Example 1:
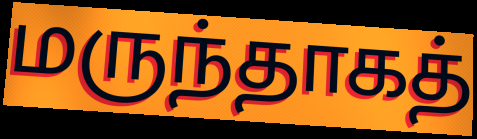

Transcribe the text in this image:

மருந்தாகத்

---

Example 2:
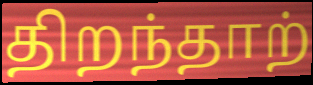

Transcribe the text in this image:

திறந்தாற்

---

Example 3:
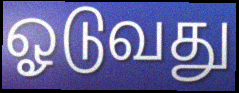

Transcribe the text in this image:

ஓடுவது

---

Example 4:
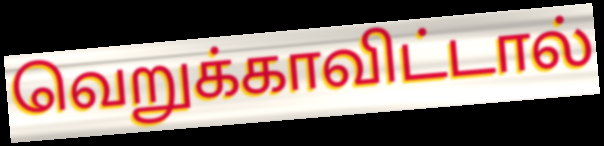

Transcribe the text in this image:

வெறுக்காவிட்டால்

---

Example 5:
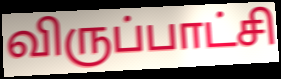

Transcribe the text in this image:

விருப்பாட்சி